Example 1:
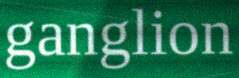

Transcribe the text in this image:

ganglion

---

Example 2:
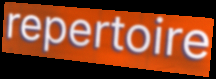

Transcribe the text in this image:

repertoire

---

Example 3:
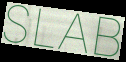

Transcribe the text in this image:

SLAB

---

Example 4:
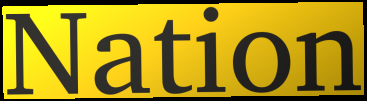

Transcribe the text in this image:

Nation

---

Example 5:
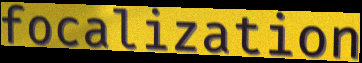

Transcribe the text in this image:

focalization